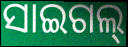
ସାଇଗଲ୍